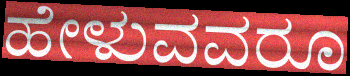
ಹೇಳುವವರೂ